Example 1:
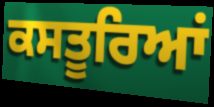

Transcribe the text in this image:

ਕਸਤੂਰਿਆਂ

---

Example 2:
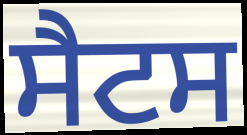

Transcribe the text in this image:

ਸੈਟਸ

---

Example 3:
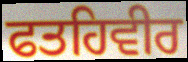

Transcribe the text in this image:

ਫਤਹਿਵੀਰ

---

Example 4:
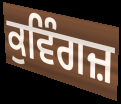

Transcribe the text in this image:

ਕੁਵਿੰਗਜ਼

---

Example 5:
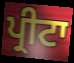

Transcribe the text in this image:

ਪ੍ਰੀਟਾ